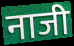
नाजी